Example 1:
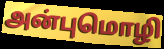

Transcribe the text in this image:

அன்புமொழி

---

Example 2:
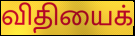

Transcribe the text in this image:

விதியைக்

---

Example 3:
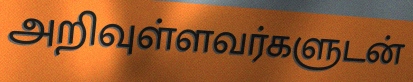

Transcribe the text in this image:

அறிவுள்ளவர்களுடன்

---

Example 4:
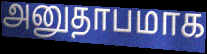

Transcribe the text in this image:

அனுதாபமாக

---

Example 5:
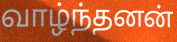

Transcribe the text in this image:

வாழ்ந்தனன்